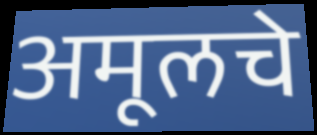
अमूलचे